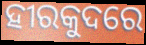
ହୀରକୁଦରେ